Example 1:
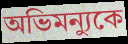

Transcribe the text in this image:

অভিমন্যুকে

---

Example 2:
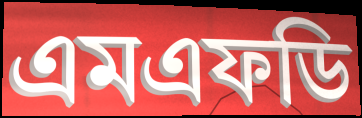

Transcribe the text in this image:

এমএফডি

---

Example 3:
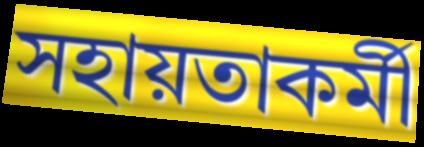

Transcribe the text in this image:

সহায়তাকর্মী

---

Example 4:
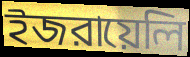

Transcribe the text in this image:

ইজরায়েলি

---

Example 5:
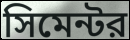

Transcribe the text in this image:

সিমেন্টর